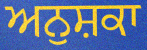
ਅਨੁਸ਼ਕਾ